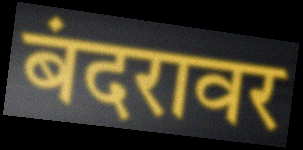
बंदरावर